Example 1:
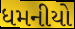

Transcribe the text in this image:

ધમનીયો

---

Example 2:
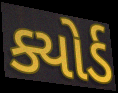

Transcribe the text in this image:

ક્યોર્ડ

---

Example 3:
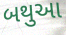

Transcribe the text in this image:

બથુઆ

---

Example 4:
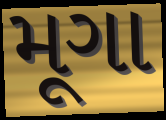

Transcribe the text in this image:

મૂગા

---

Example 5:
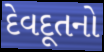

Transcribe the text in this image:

દેવદૂતનો